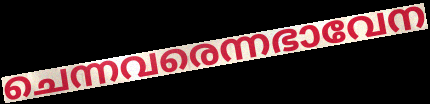
ചെന്നവരെന്നഭാവേന